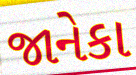
જાનેકા